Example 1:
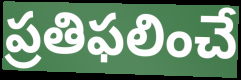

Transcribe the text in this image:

ప్రతిఫలించే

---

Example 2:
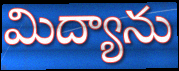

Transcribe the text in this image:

మిద్యాను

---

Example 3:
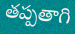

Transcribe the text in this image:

తప్పతాగి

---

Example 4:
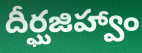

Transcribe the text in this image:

దీర్ఘజిహ్వాం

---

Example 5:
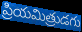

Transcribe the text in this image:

ప్రియమిత్రుడగు